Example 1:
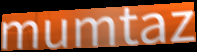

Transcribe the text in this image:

mumtaz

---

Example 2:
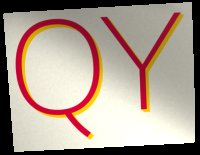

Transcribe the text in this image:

QY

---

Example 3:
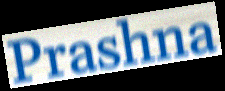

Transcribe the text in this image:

Prashna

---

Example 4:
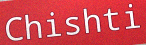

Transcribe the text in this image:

Chishti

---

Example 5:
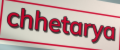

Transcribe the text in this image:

chhetarya